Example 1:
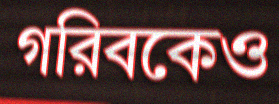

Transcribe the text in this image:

গরিবকেও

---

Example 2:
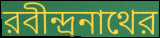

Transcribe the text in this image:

রবীন্দ্রনাথের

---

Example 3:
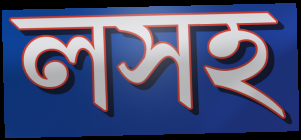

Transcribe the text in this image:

লসহ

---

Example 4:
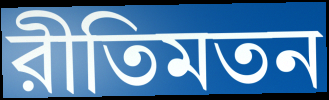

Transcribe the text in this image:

রীতিমতন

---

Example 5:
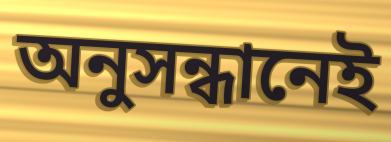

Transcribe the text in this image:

অনুসন্ধানেই